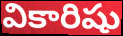
వికారిషు